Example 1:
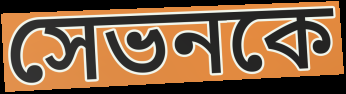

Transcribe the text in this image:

সেভনকে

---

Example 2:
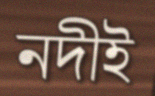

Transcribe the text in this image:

নদীই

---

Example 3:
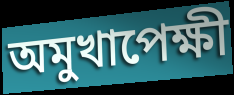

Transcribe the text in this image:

অমুখাপেক্ষী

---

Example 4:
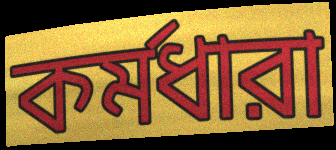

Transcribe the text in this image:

কর্মধারা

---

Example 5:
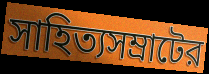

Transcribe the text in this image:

সাহিত্যসম্রাটের